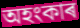
অহংকাৰ